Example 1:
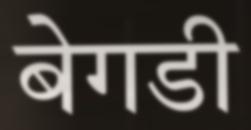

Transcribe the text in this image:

बेगडी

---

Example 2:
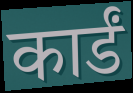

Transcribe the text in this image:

कार्डं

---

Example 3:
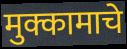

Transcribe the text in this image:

मुक्कामाचे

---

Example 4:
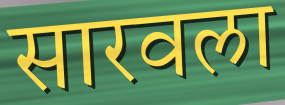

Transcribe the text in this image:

सारवला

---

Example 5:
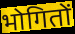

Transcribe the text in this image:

भोगितों